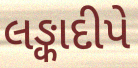
લઙ્કાદીપે